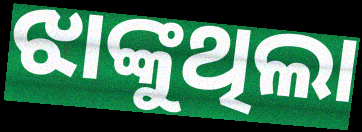
ଝାଙ୍କୁଥିଲା